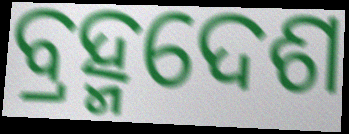
ବ୍ରହ୍ମଦେଶ